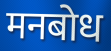
मनबोध